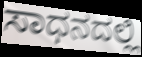
ಸಾಧನದಲ್ಲಿ